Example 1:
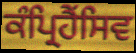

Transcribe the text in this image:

ਕੰਪ੍ਰਿਹੈਂਸਿਵ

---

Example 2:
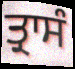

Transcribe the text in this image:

ਤ੍ਰਾਸੰ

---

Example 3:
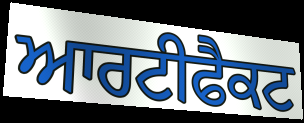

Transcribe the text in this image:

ਆਰਟੀਫੈਕਟ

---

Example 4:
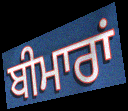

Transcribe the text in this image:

ਬੀਮਾਰਾਂ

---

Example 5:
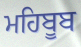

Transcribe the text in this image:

ਮਹਿਬੂਬ